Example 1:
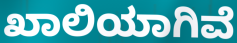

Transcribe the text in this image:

ಖಾಲಿಯಾಗಿವೆ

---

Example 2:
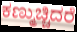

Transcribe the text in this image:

ಕಣ್ಮುಚ್ಚಿದರೆ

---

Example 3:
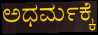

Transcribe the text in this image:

ಅಧರ್ಮಕ್ಕೆ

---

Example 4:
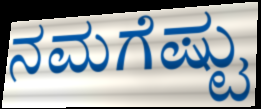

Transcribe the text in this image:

ನಮಗೆಷ್ಟು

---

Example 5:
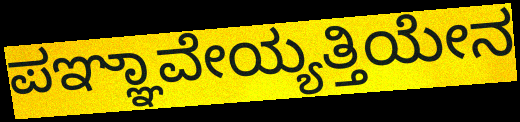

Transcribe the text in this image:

ಪಞ್ಞಾವೇಯ್ಯತ್ತಿಯೇನ